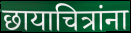
छायाचित्रांना